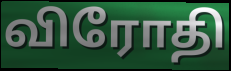
விரோதி